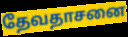
தேவதாசனை